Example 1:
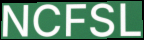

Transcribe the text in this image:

NCFSL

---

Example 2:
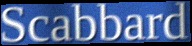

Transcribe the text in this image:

Scabbard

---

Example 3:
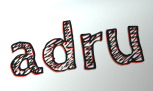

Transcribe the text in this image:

adru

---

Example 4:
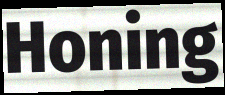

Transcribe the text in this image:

Honing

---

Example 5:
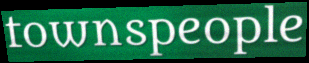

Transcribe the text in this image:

townspeople